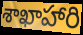
శాఖాహారి